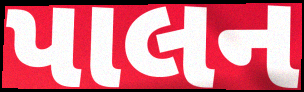
પાલન